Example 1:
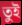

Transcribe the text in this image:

তুই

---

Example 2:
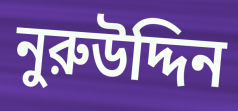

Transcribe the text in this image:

নুরুউদ্দিন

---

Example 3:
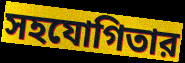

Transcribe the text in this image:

সহযোগিতার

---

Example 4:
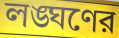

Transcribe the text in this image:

লঙ্ঘণের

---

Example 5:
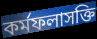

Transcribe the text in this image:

কর্মফলাসক্তি